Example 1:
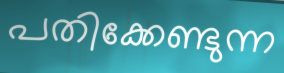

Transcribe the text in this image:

പതിക്കേണ്ടുന്ന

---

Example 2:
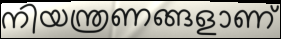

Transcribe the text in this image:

നിയന്ത്രണങ്ങളാണ്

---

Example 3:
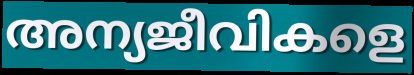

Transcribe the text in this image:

അന്യജീവികളെ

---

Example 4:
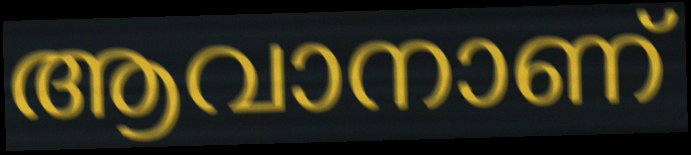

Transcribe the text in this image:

ആവാനാണ്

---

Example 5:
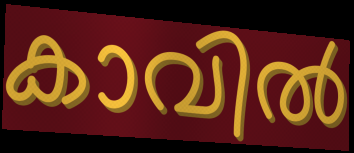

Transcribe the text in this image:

കാവിൽ